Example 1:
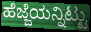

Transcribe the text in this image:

ಹೆಜ್ಜೆಯನ್ನಿಟ್ಟು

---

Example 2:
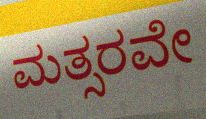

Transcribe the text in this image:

ಮತ್ಸರವೇ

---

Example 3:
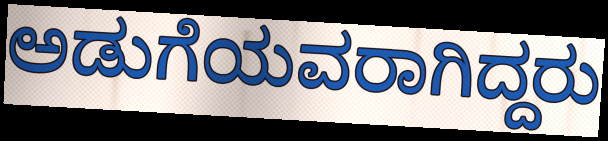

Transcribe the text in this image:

ಅಡುಗೆಯವರಾಗಿದ್ದರು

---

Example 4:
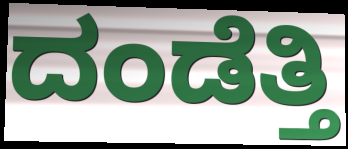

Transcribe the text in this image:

ದಂಡೆತ್ತಿ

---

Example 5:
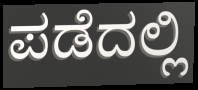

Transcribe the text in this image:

ಪಡೆದಲ್ಲಿ